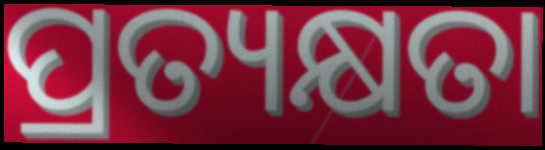
ପ୍ରତ୍ୟକ୍ଷତା